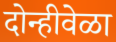
दोन्हीवेळा